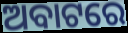
ଅବାଟରେ